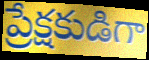
ప్రేక్షకుడిగా